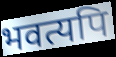
भवत्यपि